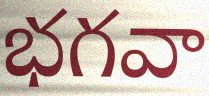
భగవా